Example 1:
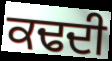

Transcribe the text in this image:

ਕਢਦੀ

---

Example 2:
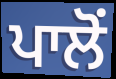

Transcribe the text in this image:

ਪਾਲੋਂ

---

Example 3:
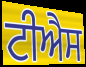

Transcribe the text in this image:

ਟੀਐਸ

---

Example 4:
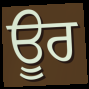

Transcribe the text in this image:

ਊਰ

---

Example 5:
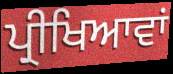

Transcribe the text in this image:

ਪ੍ਰੀਖਿਆਵਾਂ